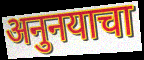
अनुनयाचा